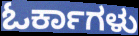
ಓರ್ಕಾಗಳು